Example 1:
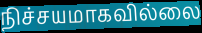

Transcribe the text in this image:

நிச்சயமாகவில்லை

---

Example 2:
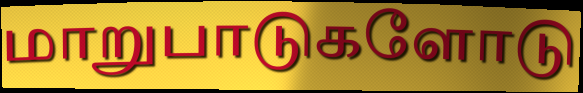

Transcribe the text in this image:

மாறுபாடுகளோடு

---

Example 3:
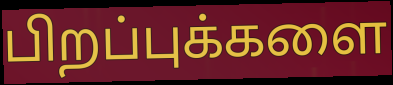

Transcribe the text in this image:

பிறப்புக்களை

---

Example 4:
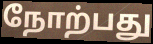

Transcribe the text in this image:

நோற்பது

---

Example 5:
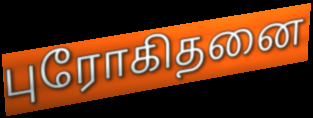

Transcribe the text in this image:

புரோகிதனை